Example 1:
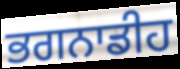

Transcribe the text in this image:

ਭਗਨਾਡੀਹ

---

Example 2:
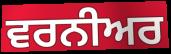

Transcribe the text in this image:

ਵਰਨੀਅਰ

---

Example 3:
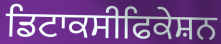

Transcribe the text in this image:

ਡਿਟਾਕਸੀਫਿਕੇਸ਼ਨ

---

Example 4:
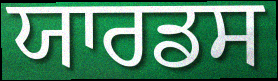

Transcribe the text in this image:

ਯਾਰਡਸ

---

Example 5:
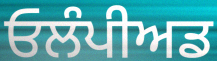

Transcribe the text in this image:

ਓਲੰਪੀਅਡ